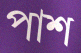
পাশ